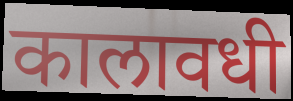
कालावधी